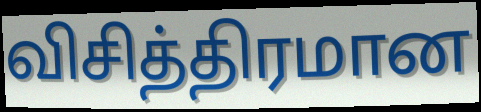
விசித்திரமான